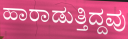
ಹಾರಾಡುತ್ತಿದ್ದವು